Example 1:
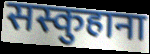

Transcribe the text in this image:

सस्कुहाना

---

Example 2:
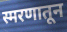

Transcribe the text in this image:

स्मरणातून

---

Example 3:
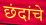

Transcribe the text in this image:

छंदांचे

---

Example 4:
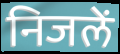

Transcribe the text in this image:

निजलें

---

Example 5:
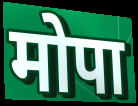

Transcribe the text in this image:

मोपा